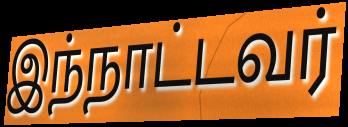
இந்நாட்டவர்